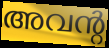
അവന്റ